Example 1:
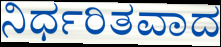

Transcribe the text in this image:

ನಿರ್ಧರಿತವಾದ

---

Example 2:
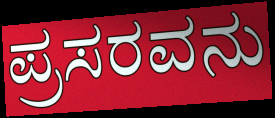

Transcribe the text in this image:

ಪ್ರಸರವನು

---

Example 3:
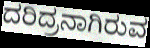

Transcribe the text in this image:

ದರಿದ್ರನಾಗಿರುವ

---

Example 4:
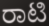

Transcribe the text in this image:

ರಾಟಿ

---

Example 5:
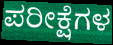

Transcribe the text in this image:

ಪರೀಕ್ಷೆಗಳ